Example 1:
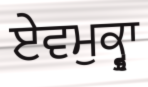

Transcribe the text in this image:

ਏਵਮੁਕ੍ਤ੍ਵਾ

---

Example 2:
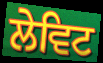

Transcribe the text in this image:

ਲੇਵਿਟ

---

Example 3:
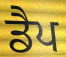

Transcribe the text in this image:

ਡੈਪ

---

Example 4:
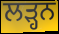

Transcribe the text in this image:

ਲੜ੍ਹਨ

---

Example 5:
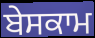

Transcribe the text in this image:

ਬੇਸਕਾਮ